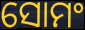
ସୋମଂ